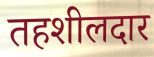
तहशीलदार